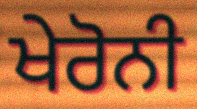
ਖੇਰੋਨੀ